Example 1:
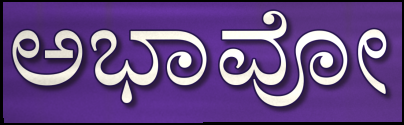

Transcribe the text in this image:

ಅಭಾವೋ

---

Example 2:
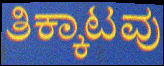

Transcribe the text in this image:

ತಿಕ್ಕಾಟವು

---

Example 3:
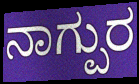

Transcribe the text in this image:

ನಾಗ್ಪುರ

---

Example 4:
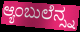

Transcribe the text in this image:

ಆ್ಯಂಬುಲೆನ್ಸ್ನ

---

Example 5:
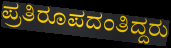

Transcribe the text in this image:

ಪ್ರತಿರೂಪದಂತಿದ್ದರು